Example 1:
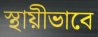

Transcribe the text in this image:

স্থায়ীভাবে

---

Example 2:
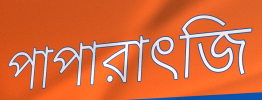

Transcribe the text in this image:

পাপারাৎজি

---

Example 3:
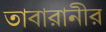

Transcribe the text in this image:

তাবারানীর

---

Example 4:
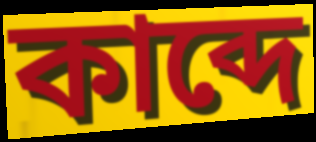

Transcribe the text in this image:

কাব্দে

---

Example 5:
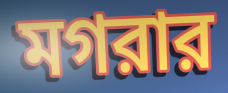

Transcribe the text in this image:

মগরার